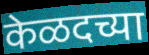
केळदच्या